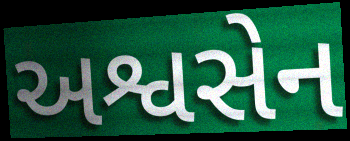
અશ્વસેન